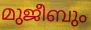
മുജീബും